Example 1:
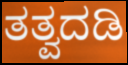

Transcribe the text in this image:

ತತ್ವದಡಿ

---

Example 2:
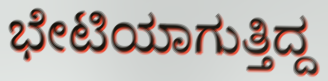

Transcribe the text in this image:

ಭೇಟಿಯಾಗುತ್ತಿದ್ದ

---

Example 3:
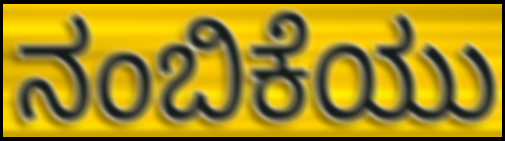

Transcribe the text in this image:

ನಂಬಿಕೆಯು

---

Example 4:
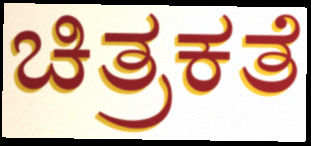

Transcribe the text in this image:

ಚಿತ್ರಕತೆ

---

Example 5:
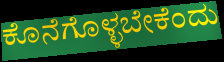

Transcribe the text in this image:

ಕೊನೆಗೊಳ್ಳಬೇಕೆಂದು